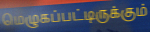
மெழுகப்பட்டிருக்கும்